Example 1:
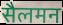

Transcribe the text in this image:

सैलमन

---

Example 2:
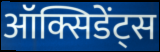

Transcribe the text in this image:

ऑक्सिडेंट्स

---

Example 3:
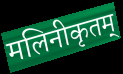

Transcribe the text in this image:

मलिनीकृतम्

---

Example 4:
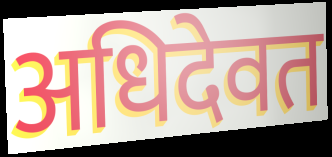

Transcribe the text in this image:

अधिदेवत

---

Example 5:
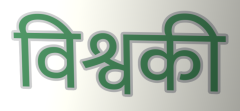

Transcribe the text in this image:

विश्वकी